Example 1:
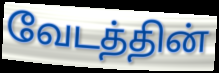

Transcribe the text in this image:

வேடத்தின்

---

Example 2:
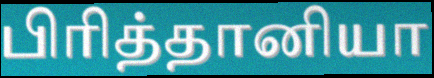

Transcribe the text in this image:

பிரித்தானியா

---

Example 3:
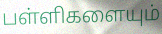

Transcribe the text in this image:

பள்ளிகளையும்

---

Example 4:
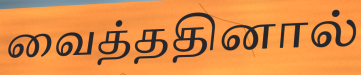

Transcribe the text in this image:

வைத்ததினால்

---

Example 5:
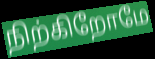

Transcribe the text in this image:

நிற்கிறோமே